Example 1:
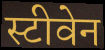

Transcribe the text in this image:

स्टीवेन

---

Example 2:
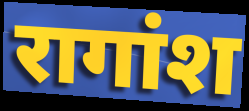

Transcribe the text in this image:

रागांश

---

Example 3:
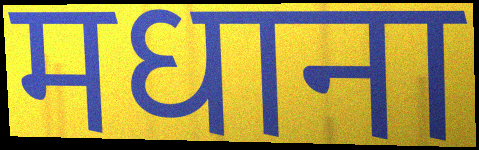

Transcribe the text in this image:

मधाना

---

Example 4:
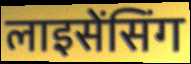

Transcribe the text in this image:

लाइसेंसिंग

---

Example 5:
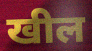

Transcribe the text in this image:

खील